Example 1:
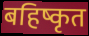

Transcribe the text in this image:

बहिष्कृत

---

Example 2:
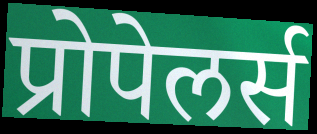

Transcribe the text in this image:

प्रोपेलर्स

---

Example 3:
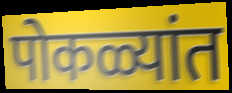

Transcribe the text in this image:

पोकळ्यांत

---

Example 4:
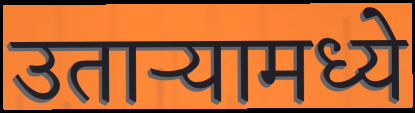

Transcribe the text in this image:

उताऱ्यामध्ये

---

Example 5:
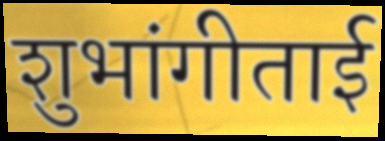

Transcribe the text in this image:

शुभांगीताई